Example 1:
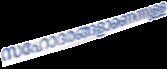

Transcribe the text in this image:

സഹോദരങ്ങളാണെന്നുള്ള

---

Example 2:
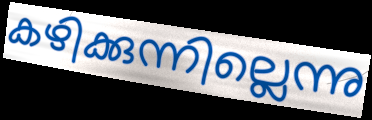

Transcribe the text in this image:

കഴിക്കുന്നില്ലെന്നു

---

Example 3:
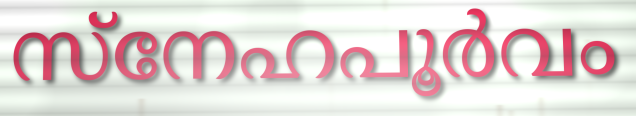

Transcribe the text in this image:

സ്നേഹപൂർവം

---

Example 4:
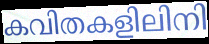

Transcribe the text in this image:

കവിതകളിലിനി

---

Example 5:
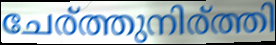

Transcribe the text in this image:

ചേര്ത്തുനിര്ത്തി